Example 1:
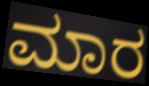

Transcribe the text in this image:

ಮಾರ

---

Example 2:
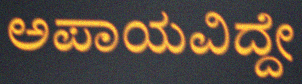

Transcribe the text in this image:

ಅಪಾಯವಿದ್ದೇ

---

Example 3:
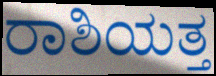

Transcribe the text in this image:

ರಾಶಿಯತ್ತ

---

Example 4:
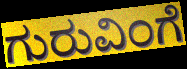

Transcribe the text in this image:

ಗುರುವಿಂಗೆ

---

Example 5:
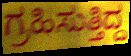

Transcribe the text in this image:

ಗ್ರಹಿಸುತ್ತಿದ್ದ